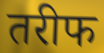
तरीफ